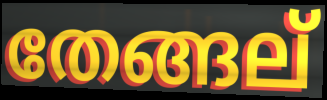
തേങ്ങല്